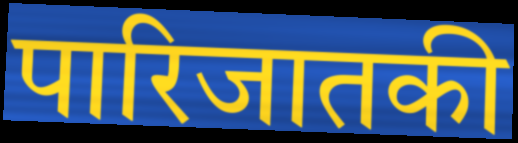
पारिजातकी